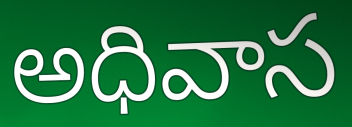
అధివాస